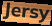
Jersy